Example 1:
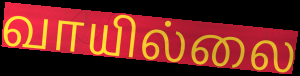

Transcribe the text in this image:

வாயில்லை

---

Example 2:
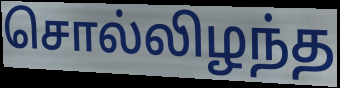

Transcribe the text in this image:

சொல்லிழந்த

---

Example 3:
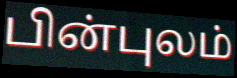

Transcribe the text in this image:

பின்புலம்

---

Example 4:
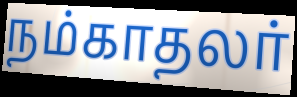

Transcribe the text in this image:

நம்காதலர்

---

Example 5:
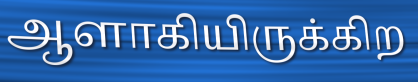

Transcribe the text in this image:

ஆளாகியிருக்கிற